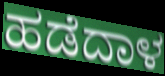
ಹಡೆದಾಳ